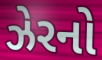
ઝેરનો